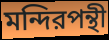
মন্দিরপন্থী